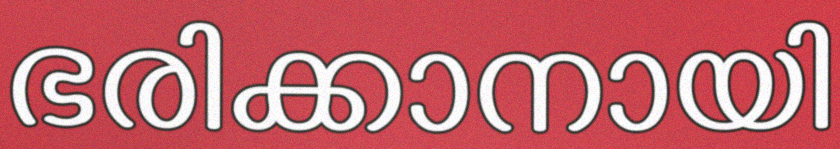
ഭരിക്കാനായി